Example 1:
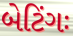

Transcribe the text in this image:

બેટિંગઃ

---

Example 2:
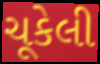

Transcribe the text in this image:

ચૂકેલી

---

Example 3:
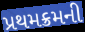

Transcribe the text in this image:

પ્રથમક્રમની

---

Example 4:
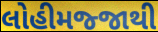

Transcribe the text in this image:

લોહીમજ્જાથી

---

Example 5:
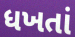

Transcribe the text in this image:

ધખતાં